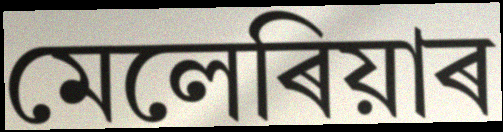
মেলেৰিয়াৰ